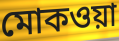
মোকওয়া